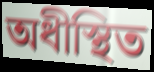
অধীস্থিত